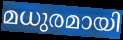
മധുരമായി